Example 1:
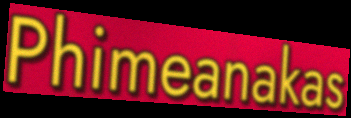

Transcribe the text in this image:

Phimeanakas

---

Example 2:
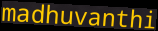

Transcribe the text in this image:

madhuvanthi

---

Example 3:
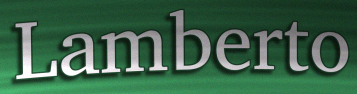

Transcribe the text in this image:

Lamberto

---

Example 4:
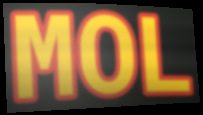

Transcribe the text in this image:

MOL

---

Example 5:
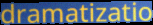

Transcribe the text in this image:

dramatizatio